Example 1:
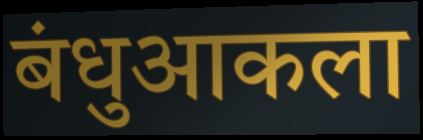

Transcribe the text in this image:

बंधुआकला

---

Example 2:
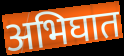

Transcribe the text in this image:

अभिघात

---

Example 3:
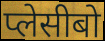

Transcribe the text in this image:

प्लेसीबो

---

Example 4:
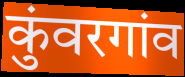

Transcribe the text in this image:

कुंवरगांव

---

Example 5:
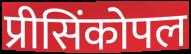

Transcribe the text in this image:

प्रीसिंकोपल